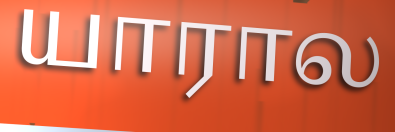
யாரால